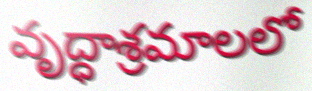
వృద్ధాశ్రమాలలో